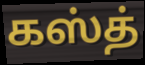
கஸ்த்